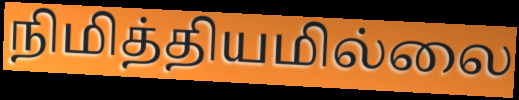
நிமித்தியமில்லை